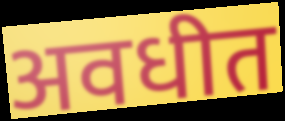
अवधीत